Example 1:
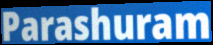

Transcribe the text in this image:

Parashuram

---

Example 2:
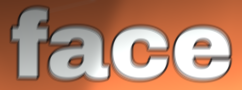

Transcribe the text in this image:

face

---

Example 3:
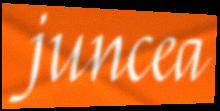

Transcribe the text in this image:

juncea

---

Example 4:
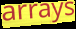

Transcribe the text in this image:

arrays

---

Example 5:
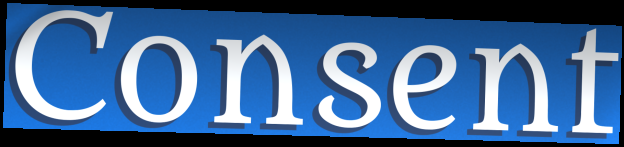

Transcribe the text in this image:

Consent